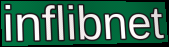
inflibnet